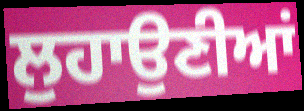
ਲੁਹਾਉਣੀਆਂ